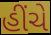
હીંચે